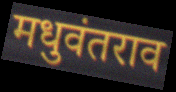
मधुवंतराव